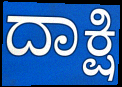
ದಾಕ್ಷಿ